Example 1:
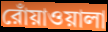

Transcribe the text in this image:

রোঁয়াওয়ালা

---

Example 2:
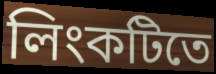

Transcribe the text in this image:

লিংকটিতে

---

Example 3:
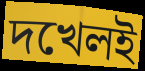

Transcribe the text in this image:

দখেলই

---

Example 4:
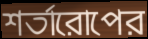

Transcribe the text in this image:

শর্তারোপের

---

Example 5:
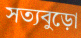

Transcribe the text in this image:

সত্যবুড়ো